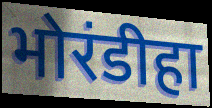
भोरंडीहा